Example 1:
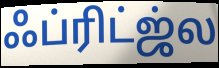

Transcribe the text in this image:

ஃப்ரிட்ஜ்ல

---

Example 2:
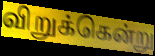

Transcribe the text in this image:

விறுக்கென்று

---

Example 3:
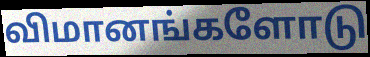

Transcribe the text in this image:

விமானங்களோடு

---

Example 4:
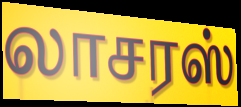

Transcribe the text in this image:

லாசரஸ்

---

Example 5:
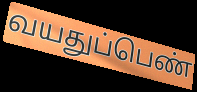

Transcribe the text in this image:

வயதுப்பெண்